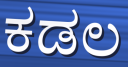
ಕಡಲ